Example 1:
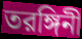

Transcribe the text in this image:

তরঙ্গিনী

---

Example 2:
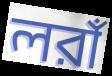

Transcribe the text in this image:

লরাঁ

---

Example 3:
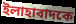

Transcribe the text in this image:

ইলাহাবাদকে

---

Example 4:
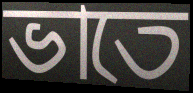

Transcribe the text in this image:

ভাতে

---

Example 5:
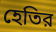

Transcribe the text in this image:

হেতির